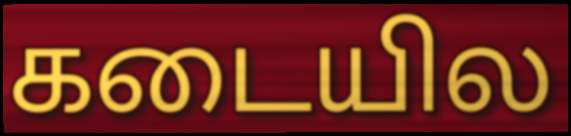
கடையில